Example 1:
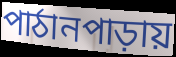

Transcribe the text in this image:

পাঠানপাড়ায়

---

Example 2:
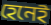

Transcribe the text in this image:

হেনেই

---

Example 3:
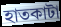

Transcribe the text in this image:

হাতকাটা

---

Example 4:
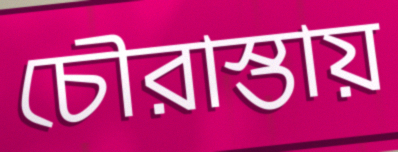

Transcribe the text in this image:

চৌরাস্তায়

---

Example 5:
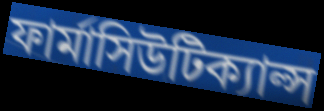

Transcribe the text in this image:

ফার্মাসিউটিক্যাল্স